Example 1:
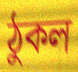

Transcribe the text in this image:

ঠুকল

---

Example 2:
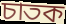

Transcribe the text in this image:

চাতক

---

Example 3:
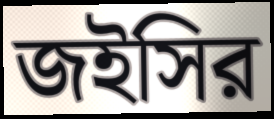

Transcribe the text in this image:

জইসির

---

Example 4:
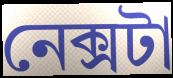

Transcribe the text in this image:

নেক্সটা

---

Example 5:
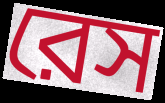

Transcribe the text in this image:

রেস